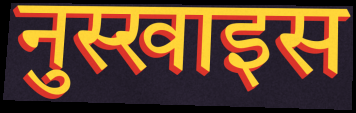
नुस्खाइस